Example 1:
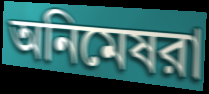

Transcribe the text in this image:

অনিমেষরা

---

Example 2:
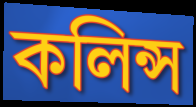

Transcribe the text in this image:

কলিন্স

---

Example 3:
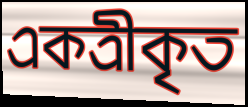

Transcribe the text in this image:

একত্রীকৃত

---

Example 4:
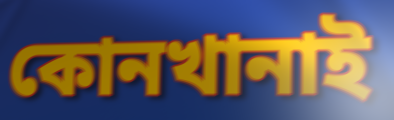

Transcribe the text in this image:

কোনখানাই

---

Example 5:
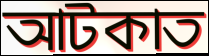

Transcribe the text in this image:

আটকাত